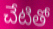
చేటితో